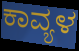
ಕಾವ್ಯಳ